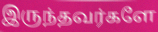
இருந்தவர்களே